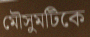
মৌসুমটিকে